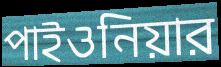
পাইওনিয়ার